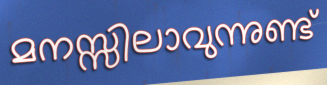
മനസ്സിലാവുന്നുണ്ട്